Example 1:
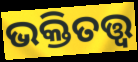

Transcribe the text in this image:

ଭକ୍ତିତତ୍ତ୍ୱ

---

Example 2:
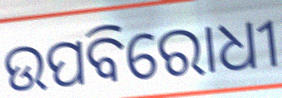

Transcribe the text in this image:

ଉପବିରୋଧୀ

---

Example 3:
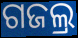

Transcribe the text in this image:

ଗଜଲ୍ର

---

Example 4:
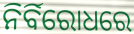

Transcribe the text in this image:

ନିର୍ବିରୋଧରେ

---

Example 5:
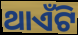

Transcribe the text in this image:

ଥାଏଁଟି